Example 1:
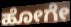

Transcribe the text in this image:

ಹೋಗೇ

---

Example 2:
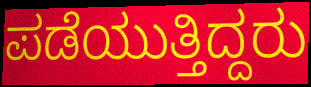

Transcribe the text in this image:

ಪಡೆಯುತ್ತಿದ್ದರು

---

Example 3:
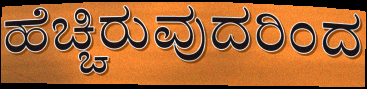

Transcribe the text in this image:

ಹೆಚ್ಚಿರುವುದರಿಂದ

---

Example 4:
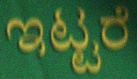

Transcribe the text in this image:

ಇಟ್ಟರೆ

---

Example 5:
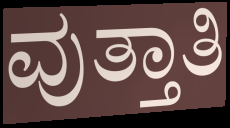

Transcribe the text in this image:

ವುತ್ತಾತಿ